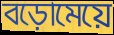
বড়োমেয়ে